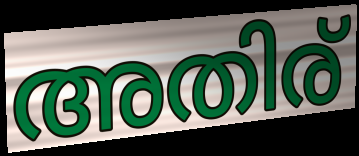
അതിര്